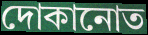
দোকানোত